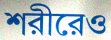
শরীরেও